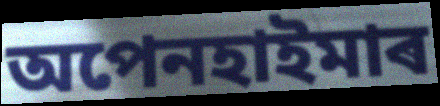
অপেনহাইমাৰ